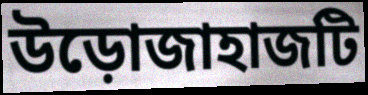
উড়োজাহাজটি